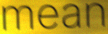
mean